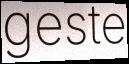
geste